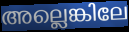
അല്ലെങ്കിലേ